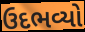
ઉદભવ્યો